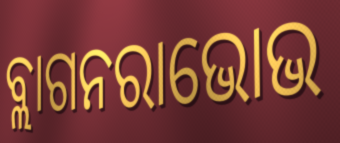
ବ୍ଲାଗନରାଭୋଭ